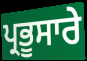
ਪ੍ਰਭੂਸਾਰੇ